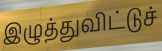
இழுத்துவிட்டுச்